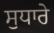
ਸੁਧਾਰੇ